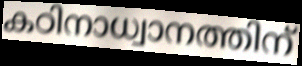
കഠിനാധ്വാനത്തിന്